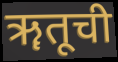
ॠतूची